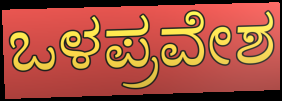
ಒಳಪ್ರವೇಶ